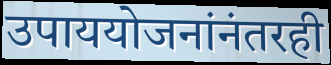
उपाययोजनांनंतरही